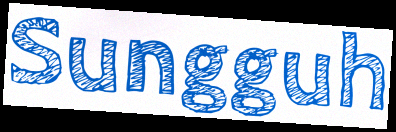
Sungguh